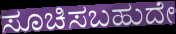
ಸೂಚಿಸಬಹುದೇ